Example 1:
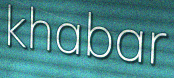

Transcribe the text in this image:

khabar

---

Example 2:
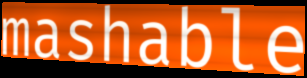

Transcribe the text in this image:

mashable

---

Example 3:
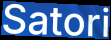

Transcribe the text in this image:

Satori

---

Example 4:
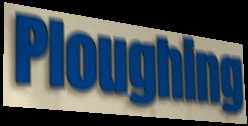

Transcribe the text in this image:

Ploughing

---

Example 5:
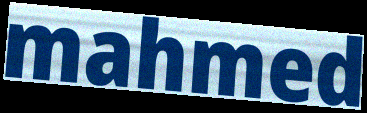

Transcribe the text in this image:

mahmed